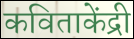
कविताकेंद्री